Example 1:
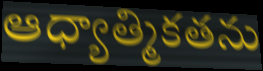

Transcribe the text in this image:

ఆధ్యాత్మికతను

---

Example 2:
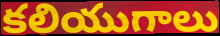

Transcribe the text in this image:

కలియుగాలు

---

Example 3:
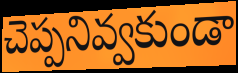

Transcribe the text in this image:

చెప్పనివ్వకుండా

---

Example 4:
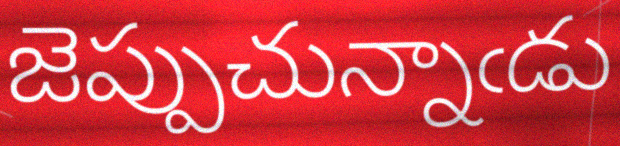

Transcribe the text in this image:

జెప్పుచున్నాఁడు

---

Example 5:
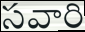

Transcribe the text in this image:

సవారి